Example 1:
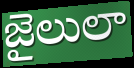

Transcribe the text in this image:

జైలులా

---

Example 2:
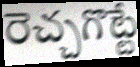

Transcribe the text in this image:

రెచ్చగొట్టే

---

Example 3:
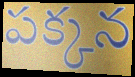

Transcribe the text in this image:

పక్కన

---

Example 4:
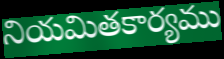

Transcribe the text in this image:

నియమితకార్యము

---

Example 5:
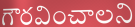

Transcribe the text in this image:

గౌరవించాలని